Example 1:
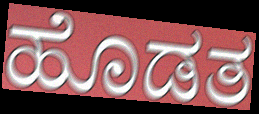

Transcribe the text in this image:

ಹೊಡತ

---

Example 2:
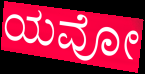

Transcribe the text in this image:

ಯವೋ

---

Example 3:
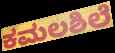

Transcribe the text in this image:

ಕಮಲಶಿಲೆ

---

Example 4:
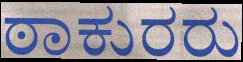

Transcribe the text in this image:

ಠಾಕುರರು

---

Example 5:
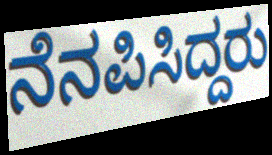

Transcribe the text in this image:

ನೆನಪಿಸಿದ್ದರು